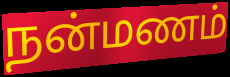
நன்மணம்